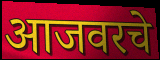
आजवरचे